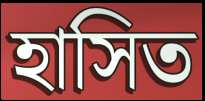
হাসিত